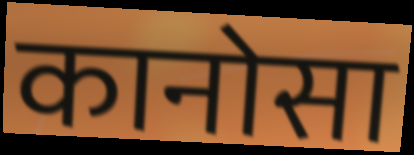
कानोसा